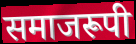
समाजरूपी